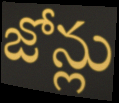
జోన్లు